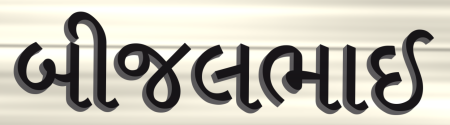
બીજલભાઈ